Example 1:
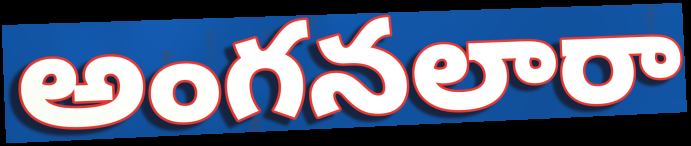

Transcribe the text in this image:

అంగనలారా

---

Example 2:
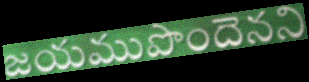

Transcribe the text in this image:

జయముపొందెనని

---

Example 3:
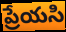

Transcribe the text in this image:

ప్రేయసి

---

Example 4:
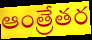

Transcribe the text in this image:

ఆంత్రేతర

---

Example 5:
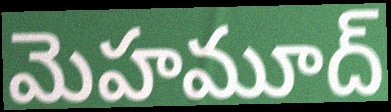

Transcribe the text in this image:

మెహమూద్